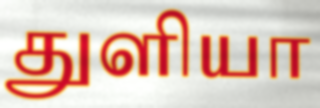
துளியா